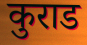
कुराड